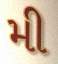
મી